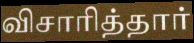
விசாரித்தார்